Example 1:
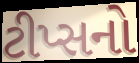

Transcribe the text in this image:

ટીપ્સનો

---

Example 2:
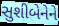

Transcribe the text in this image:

સુશીબેનેને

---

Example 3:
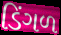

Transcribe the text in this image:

ડિંગળ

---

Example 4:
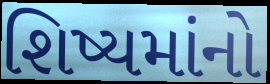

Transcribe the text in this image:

શિષ્યમાંનો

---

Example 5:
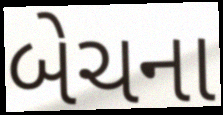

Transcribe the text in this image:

બેચના